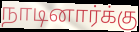
நாடினார்க்கு